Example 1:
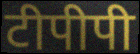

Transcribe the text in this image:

टीपीपी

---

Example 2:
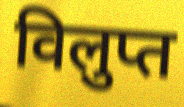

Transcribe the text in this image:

विलुप्त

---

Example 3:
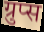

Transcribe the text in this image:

ग्रुप्स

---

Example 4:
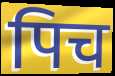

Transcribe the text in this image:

पिच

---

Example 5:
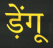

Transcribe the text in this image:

ड़ेंगू